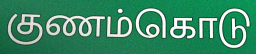
குணம்கொடு